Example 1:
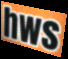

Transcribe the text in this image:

hws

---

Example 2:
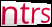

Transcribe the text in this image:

ntrs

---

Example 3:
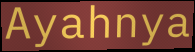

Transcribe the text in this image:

Ayahnya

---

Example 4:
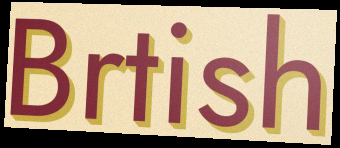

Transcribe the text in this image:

Brtish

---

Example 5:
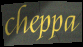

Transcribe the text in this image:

cheppa